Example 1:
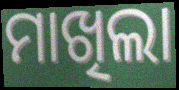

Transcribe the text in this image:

ମାଖିଲା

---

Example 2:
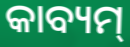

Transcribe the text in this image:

କାବ୍ୟମ୍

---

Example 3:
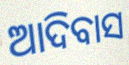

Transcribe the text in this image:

ଆଦିବାସ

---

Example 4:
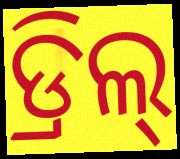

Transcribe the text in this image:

ଡ୍ରିଲ୍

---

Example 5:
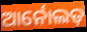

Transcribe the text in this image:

ଆର୍ନୋଲଡ଼